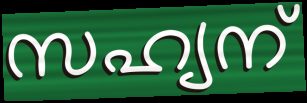
സഹ്യന്